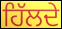
ਹਿੱਲਦੇ